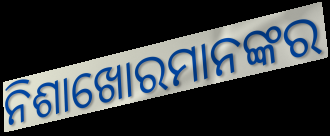
ନିଶାଖୋରମାନଙ୍କର